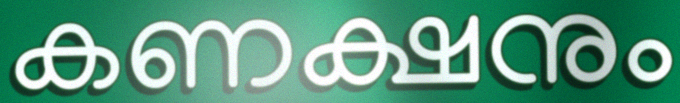
കണക്ഷനും